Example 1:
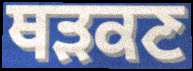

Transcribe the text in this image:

ਥੜਕਣ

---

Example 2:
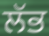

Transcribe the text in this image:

ਲੱਭ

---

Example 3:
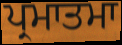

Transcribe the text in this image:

ਪ੍ਰਮਾਤਮਾ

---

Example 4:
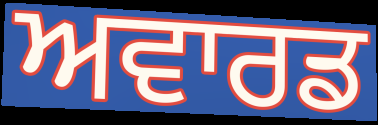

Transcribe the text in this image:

ਅਵਾਰਡ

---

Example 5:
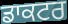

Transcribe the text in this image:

ਡਾਕਟਰ